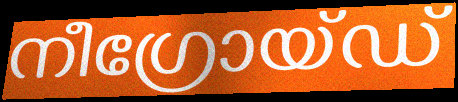
നീഗ്രോയ്ഡ്